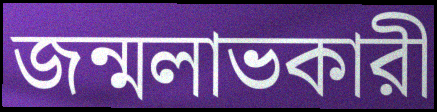
জন্মলাভকারী